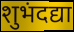
शुभंदद्या